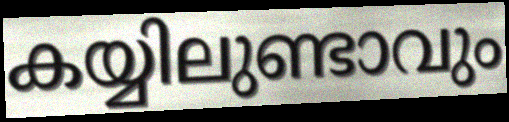
കയ്യിലുണ്ടാവും